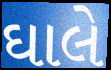
ઘાલે